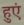
हुएं